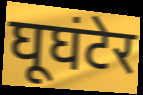
घूघंटेर